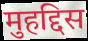
मुहद्दिस